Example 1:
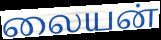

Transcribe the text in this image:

லையன்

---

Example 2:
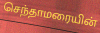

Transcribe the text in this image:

செந்தாமரையின்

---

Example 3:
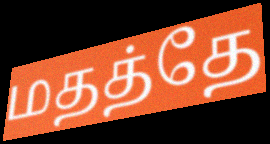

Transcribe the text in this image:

மதத்தே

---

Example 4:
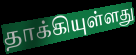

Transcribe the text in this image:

தாக்கியுள்ளது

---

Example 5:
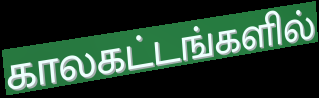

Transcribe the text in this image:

காலகட்டங்களில்